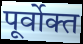
पूर्वोक्‍त